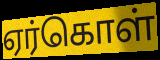
ஏர்கொள்